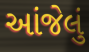
આંજેલું